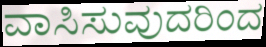
ವಾಸಿಸುವುದರಿಂದ